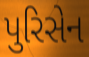
પુરિસેન